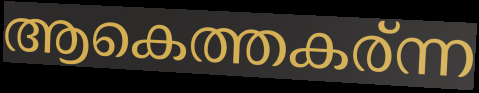
ആകെത്തകര്ന്ന